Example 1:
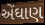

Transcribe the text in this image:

એંઘાણ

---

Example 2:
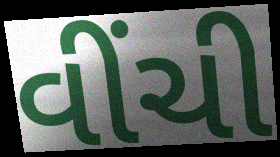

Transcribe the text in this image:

વીંચી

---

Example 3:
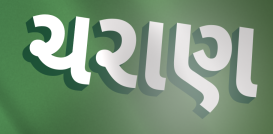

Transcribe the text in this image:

ચરાણ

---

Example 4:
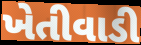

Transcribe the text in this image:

ખેતીવાડી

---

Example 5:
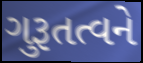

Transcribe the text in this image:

ગુરૂતત્વને